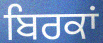
ਬਿਰਕਾਂ